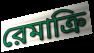
রেমাক্রি